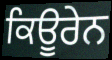
ਕਿਊਰੇਨ